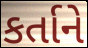
કર્તાને